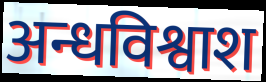
अन्धविश्वाश